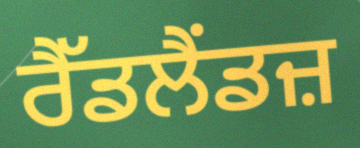
ਰੈੱਡਲੈਂਡਜ਼